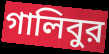
গালিবুর